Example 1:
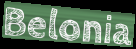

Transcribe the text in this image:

Belonia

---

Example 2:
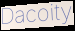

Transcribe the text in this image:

Dacoity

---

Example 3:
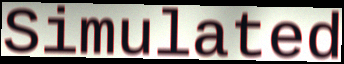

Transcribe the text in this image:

Simulated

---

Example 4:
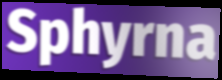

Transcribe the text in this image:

Sphyrna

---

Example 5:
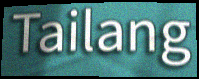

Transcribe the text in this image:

Tailang